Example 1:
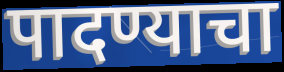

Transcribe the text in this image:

पादण्याचा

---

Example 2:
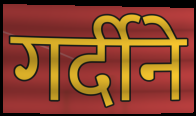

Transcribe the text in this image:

गर्दीने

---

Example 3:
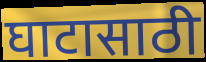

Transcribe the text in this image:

घाटासाठी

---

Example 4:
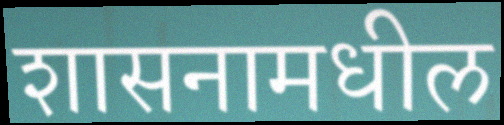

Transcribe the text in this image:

शासनामधील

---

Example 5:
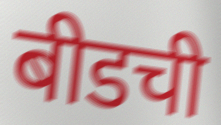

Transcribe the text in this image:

बीडची